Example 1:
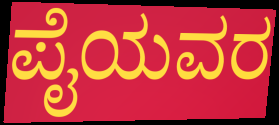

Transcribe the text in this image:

ಪೈಯವರ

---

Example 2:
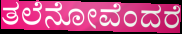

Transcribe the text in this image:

ತಲೆನೋವೆಂದರೆ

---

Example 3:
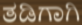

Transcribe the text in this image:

ತಡಿಗಾಗಿ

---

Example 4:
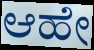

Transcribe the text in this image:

ಆಹೇ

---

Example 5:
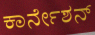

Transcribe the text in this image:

ಕಾರ್ನೇಶನ್